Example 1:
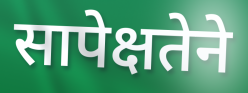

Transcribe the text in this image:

सापेक्षतेने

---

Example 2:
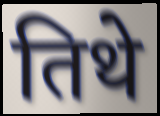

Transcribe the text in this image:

तिथे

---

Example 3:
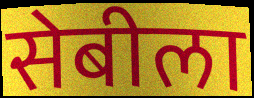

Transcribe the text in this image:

सेबीला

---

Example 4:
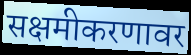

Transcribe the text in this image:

सक्षमीकरणावर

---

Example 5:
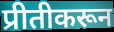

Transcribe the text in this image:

प्रीतीकरून